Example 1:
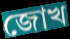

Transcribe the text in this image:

জোখ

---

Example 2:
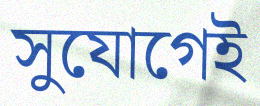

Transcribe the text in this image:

সুযোগেই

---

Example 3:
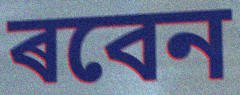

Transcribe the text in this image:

ৰবেন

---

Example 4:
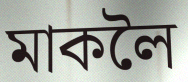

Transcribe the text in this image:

মাকলৈ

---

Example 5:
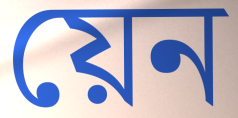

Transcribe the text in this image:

য়েন